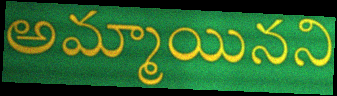
అమ్మాయినని